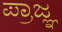
ಪ್ರಾಜ್ಞ